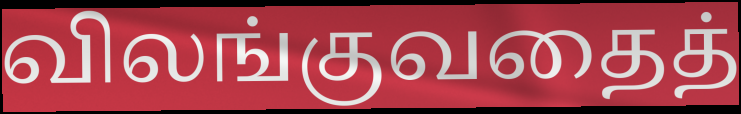
விலங்குவதைத்